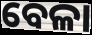
ବେଳା